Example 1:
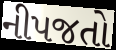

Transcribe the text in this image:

નીપજતો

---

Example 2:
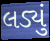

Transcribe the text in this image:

લડ્યું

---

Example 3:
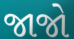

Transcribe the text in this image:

જાજો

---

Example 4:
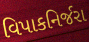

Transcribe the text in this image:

વિપાકનિર્જરા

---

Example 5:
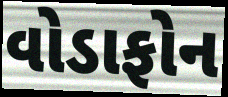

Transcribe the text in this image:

વોડાફોન